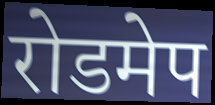
रोडमेप